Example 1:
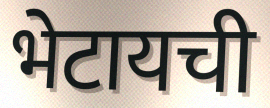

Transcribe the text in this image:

भेटायची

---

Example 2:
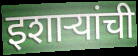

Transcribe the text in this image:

इशाऱ्यांची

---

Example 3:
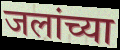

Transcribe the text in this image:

जलांच्या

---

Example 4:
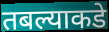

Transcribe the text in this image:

तबल्याकडे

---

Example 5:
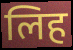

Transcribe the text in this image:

लिह